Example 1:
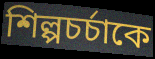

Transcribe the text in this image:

শিল্পচর্চাকে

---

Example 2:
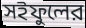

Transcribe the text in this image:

সইফুলের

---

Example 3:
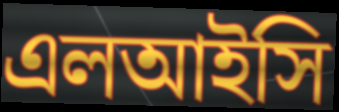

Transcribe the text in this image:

এলআইসি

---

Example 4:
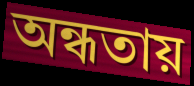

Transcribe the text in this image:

অন্ধতায়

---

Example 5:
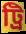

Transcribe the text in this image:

ট্রি